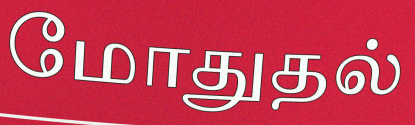
மோதுதல்